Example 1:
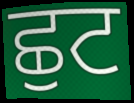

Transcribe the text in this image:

ਛੁਟ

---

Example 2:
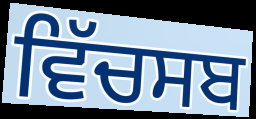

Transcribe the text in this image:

ਵਿੱਚਸਬ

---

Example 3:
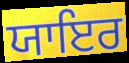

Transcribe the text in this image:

ਯਾਇਰ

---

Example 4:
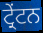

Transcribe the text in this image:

ਟ੍ਰੇਂਟਨ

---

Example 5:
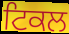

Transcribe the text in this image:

ਟਿਕਲ